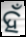
ହଁ